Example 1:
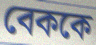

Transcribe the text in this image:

বেককে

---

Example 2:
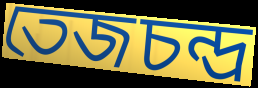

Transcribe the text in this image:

তেজচন্দ্র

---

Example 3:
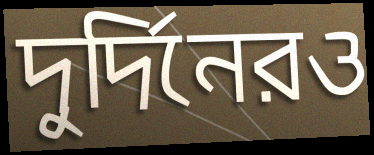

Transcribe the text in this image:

দুর্দিনেরও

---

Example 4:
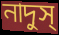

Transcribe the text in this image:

নাদুস্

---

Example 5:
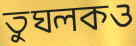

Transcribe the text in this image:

তুঘলকও